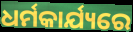
ଧର୍ମକାର୍ଯ୍ୟରେ